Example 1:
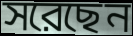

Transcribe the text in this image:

সরেছেন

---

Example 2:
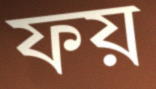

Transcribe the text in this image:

ফয়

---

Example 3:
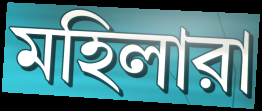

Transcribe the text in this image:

মহিলারা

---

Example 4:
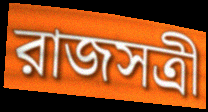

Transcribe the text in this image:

রাজসত্রী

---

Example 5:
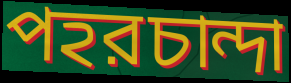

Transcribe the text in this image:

পহরচান্দা